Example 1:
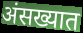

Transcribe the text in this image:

अंसख्यात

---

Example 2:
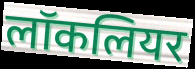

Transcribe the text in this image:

लॉकलियर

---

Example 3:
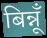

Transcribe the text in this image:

बिन्नूँ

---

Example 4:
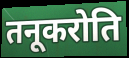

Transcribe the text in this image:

तनूकरोति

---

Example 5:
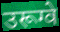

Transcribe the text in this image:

उरूग्वे